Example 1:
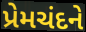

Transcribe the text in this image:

પ્રેમચંદને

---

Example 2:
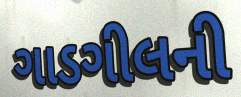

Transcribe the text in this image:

ગાડગીલની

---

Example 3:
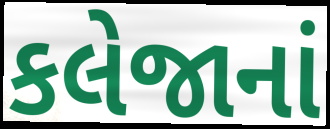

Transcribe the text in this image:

કલેજાનાં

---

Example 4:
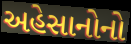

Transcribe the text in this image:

અહેસાનોનો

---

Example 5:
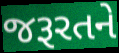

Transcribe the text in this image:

જરૂરતને